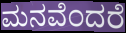
ಮನವೆಂದರೆ